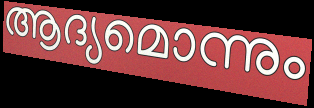
ആദ്യമൊന്നും